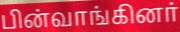
பின்வாங்கினர்